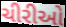
ચીરીઓ